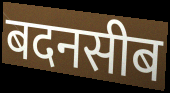
बदनसीब